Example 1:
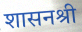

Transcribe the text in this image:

शासनश्री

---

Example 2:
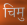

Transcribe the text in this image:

चिमु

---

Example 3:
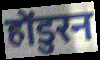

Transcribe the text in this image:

होंडुरन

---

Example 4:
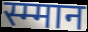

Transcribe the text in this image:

स्म्मान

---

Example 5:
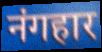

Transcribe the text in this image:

नंगहार